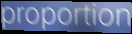
proportion